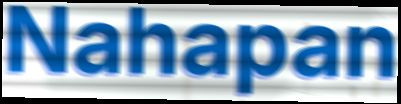
Nahapan